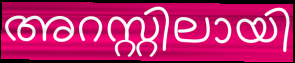
അറസ്റ്റിലായി